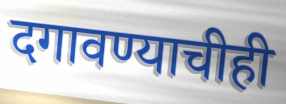
दगावण्याचीही